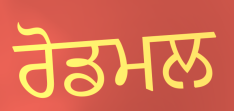
ਰੋਡਮਲ